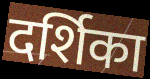
दर्शिका